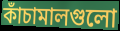
কাঁচামালগুলো